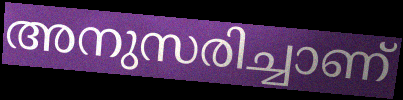
അനുസരിച്ചാണ്